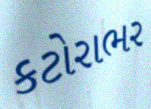
કટોરાભર